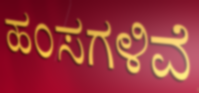
ಹಂಸಗಳಿವೆ